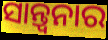
ସାନ୍ତ୍ୱନାର